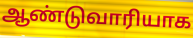
ஆண்டுவாரியாக